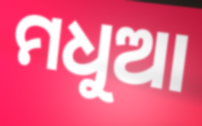
ମଧୁଆ